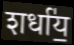
शर्धा॑य॒